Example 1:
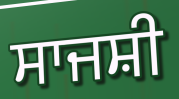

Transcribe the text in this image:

ਸਾਜਸ਼ੀ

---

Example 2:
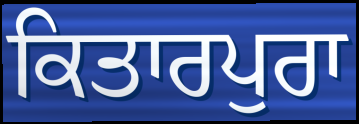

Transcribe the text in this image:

ਕਿਤਾਰਪੁਰਾ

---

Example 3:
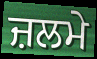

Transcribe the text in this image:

ਜ਼ਲਮੇ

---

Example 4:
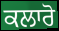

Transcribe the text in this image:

ਕਲਾਰੋ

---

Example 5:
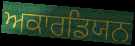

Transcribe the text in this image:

ਅਕਾਰਡਿਯਨ